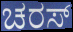
ಚರಸ್